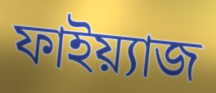
ফাইয়্যাজ